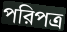
পরিপত্র